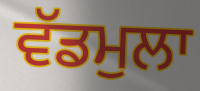
ਵੱਡਮੁਲਾ